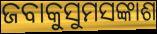
ଜବାକୁସୁମସଙ୍କାଶ